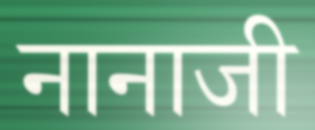
नानाजी